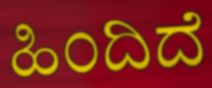
ಹಿಂದಿದೆ